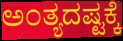
ಅಂತ್ಯದಷ್ಟಕ್ಕೆ